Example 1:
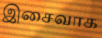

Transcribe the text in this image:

இசைவாக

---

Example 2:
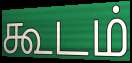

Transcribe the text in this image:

கூடம்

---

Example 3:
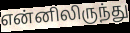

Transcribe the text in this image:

என்னிலிருந்து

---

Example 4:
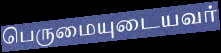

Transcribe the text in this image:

பெருமையுடையவர்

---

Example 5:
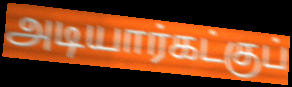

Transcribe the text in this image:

அடியார்கட்குப்